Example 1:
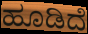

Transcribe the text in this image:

ಹೂಡಿದೆ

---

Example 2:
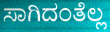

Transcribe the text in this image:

ಸಾಗಿದಂತೆಲ್ಲ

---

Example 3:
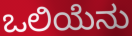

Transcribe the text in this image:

ಒಲಿಯೆನು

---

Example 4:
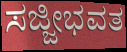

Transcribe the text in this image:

ಸಜ್ಜೀಭವತ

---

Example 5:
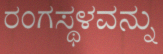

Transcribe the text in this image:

ರಂಗಸ್ಥಳವನ್ನು